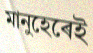
মানুহেৰেই